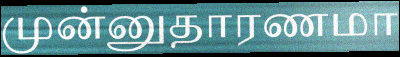
முன்னுதாரணமா